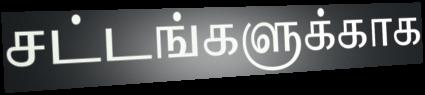
சட்டங்களுக்காக